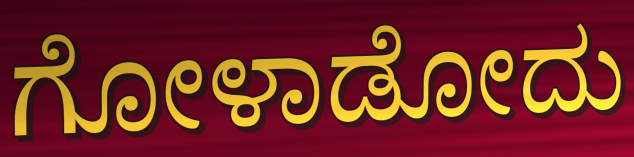
ಗೋಳಾಡೋದು